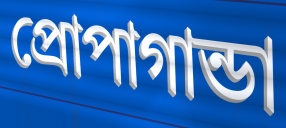
প্রোপাগান্ডা